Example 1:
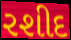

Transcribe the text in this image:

રશીદ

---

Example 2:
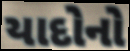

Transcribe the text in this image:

યાદોનો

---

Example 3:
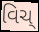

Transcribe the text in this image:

વિચ્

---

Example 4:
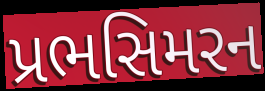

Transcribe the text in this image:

પ્રભસિમરન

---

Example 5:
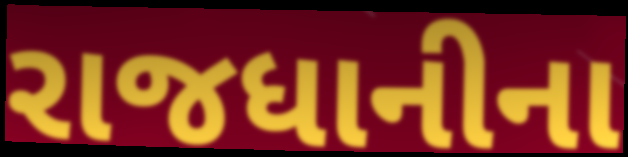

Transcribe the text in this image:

રાજધાનીના